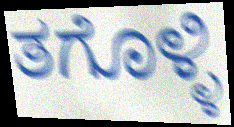
ತಗೊಳ್ಳಿ